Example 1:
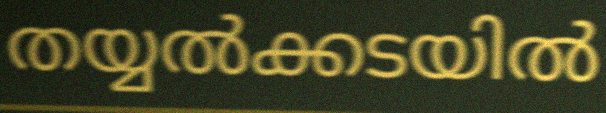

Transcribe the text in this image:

തയ്യൽക്കടയിൽ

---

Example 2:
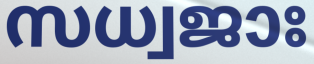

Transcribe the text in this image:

സധ്വജാഃ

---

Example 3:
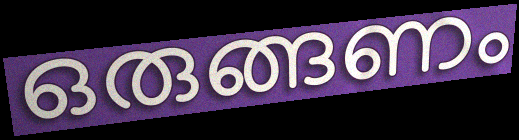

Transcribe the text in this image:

ഒരുങ്ങണം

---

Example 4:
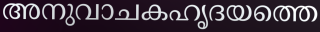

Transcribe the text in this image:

അനുവാചകഹൃദയത്തെ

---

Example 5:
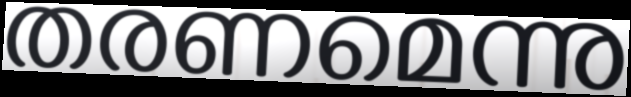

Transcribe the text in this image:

തരണമെന്നു